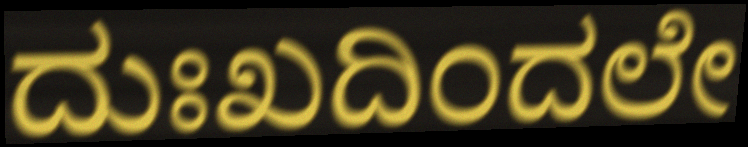
ದುಃಖದಿಂದಲೇ